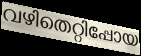
വഴിതെറ്റിപ്പോയ